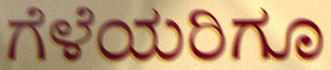
ಗೆಳೆಯರಿಗೂ